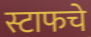
स्टाफचे